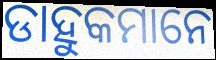
ଡାହୁକମାନେ